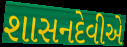
શાસનદેવીએ